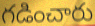
గడించారు